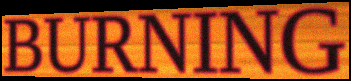
BURNING